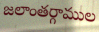
జలాంతర్గాముల